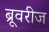
ब्रूवरीज